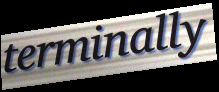
terminally